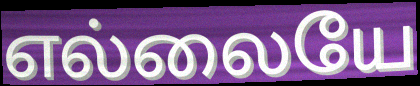
எல்லையே